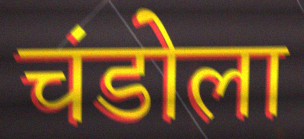
चंडोला